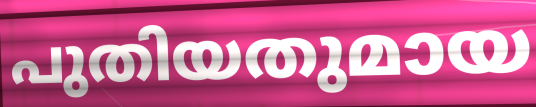
പുതിയതുമായ